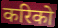
करिको